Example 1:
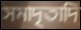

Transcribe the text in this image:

সমাদৃতাদি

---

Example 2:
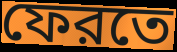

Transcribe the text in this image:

ফেরতে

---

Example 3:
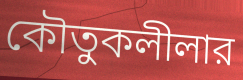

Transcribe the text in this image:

কৌতুকলীলার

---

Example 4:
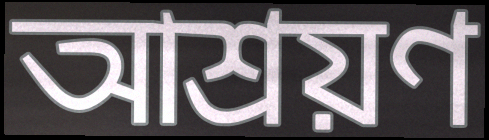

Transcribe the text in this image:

আশ্রয়ণ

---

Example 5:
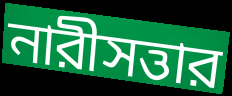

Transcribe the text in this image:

নারীসত্তার